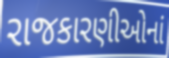
રાજકારણીઓનાં